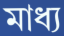
মাধ্য